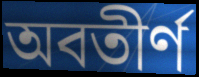
অবতীর্ণ